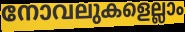
നോവലുകളെല്ലാം